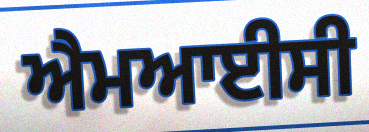
ਐਮਆਈਸੀ